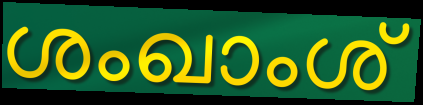
ശംഖാംശ്